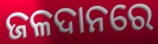
ଜଳଦାନରେ